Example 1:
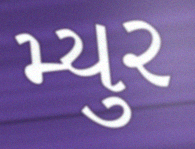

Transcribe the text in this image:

મ્યુર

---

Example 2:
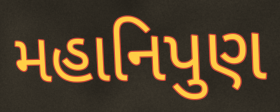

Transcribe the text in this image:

મહાનિપુણ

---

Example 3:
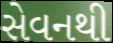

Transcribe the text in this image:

સેવનથી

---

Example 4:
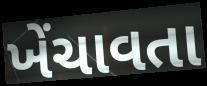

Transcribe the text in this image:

ખેંચાવતા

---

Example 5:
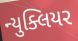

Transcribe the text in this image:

ન્યુક્લિયર